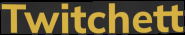
Twitchett